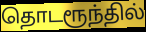
தொடரூந்தில்